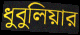
ধুবুলিয়ার